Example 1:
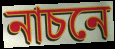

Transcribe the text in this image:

নাচনে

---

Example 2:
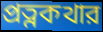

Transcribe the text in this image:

প্রত্নকথার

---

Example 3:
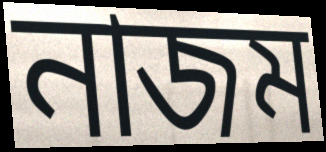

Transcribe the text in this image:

নাজম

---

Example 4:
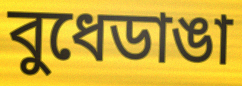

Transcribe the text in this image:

বুধেডাঙা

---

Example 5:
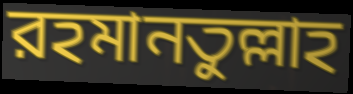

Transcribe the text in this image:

রহমানতুল্লাহ